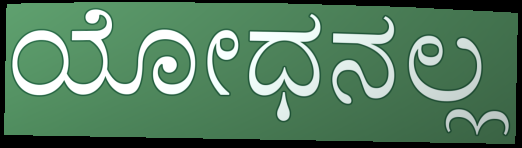
ಯೋಧನಲ್ಲ